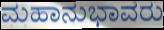
ಮಹಾನುಭಾವರು